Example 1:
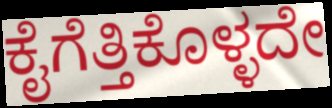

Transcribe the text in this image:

ಕೈಗೆತ್ತಿಕೊಳ್ಳದೇ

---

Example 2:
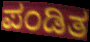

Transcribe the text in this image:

ಪಂಡಿತ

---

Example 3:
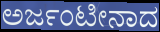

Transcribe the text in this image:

ಅರ್ಜಂಟೀನಾದ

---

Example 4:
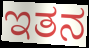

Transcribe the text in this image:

ಇತನ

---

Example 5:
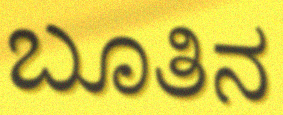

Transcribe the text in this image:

ಬೂತಿನ